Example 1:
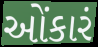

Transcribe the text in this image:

ઓંકારં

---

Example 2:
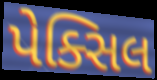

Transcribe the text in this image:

પેક્સિલ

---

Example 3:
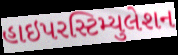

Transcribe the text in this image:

હાઇપરસ્ટિમ્યુલેશન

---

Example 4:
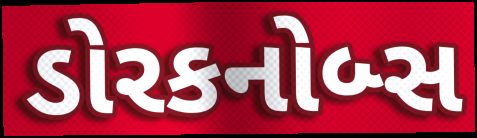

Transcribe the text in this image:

ડોરકનોબ્સ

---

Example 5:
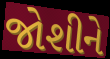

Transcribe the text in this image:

જોશીને